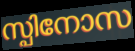
സ്പിനോസ